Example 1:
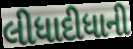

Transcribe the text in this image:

લીધાદીધાની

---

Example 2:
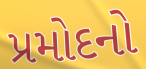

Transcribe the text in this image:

પ્રમોદનો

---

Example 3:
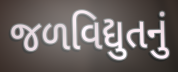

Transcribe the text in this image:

જળવિદ્યુતનું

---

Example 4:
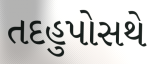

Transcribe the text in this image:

તદહુપોસથે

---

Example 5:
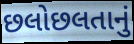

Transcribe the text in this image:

છલોછલતાનું